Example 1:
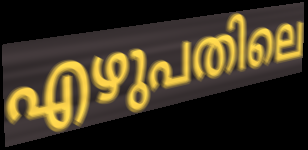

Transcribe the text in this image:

എഴുപതിലെ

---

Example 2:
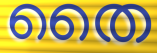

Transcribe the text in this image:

തൈ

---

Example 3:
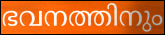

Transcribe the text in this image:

ഭവനത്തിനും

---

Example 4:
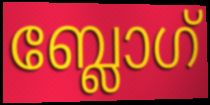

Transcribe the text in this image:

ബ്ലോഗ്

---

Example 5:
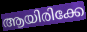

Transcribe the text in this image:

ആയിരിക്കേ